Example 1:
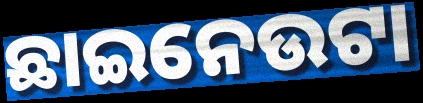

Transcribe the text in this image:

ଛାଇନେଉଟା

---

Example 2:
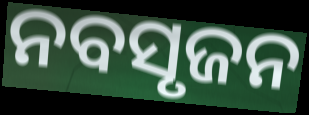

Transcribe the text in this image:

ନବସୃଜନ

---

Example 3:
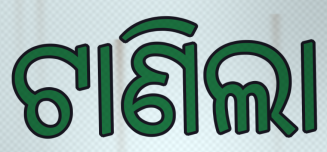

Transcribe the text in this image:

ଟାଣିଲା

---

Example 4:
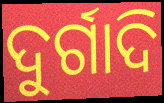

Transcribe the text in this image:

ଦୁର୍ଗାଦି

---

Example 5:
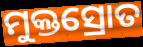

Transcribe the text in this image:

ମୁକ୍ତସ୍ରୋତ